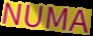
NUMA